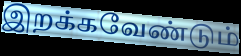
இறக்கவேண்டும்